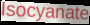
Isocyanate